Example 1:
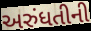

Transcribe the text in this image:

અરુંધતીની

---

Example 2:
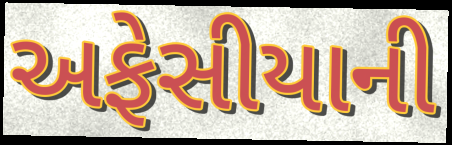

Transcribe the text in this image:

અફેસીયાની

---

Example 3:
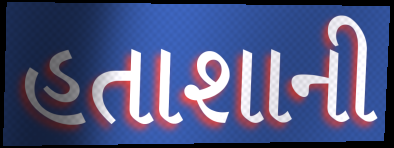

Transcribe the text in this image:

હતાશાની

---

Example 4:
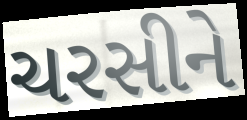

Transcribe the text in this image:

ચરસીને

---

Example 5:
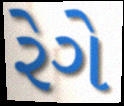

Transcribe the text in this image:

રેગે